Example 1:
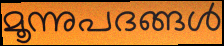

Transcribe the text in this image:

മൂന്നുപദങ്ങൾ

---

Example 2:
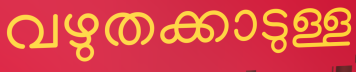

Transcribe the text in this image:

വഴുതക്കാടുള്ള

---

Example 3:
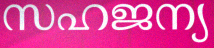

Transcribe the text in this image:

സഹജന്യ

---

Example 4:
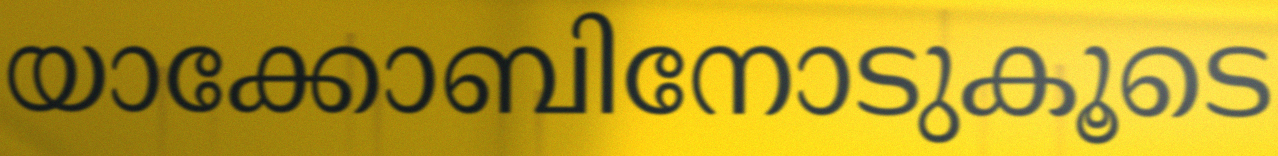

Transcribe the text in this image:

യാക്കോബിനോടുകൂടെ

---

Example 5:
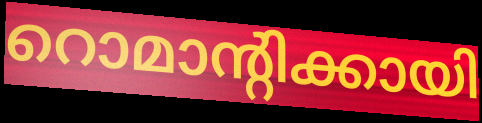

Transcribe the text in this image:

റൊമാന്റിക്കായി